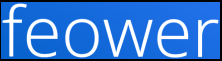
feower